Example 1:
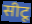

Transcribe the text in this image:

सीटू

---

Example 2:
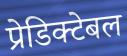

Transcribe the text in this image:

प्रेडिक्टेबल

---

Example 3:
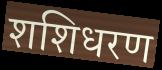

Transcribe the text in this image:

शशिधरण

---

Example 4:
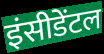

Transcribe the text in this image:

इंसीडेंटल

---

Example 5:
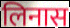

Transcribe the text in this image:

लिनास